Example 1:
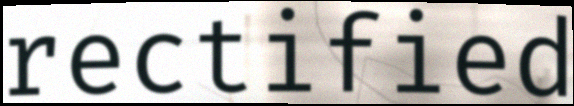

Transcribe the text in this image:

rectified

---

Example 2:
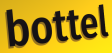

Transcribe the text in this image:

bottel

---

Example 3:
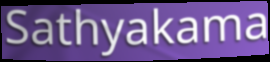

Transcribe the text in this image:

Sathyakama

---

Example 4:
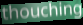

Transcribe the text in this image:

thouching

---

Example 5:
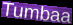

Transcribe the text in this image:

Tumbaa